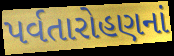
પર્વતારોહણનાં